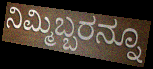
ನಿಮ್ಮಿಬ್ಬರನ್ನೂ